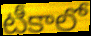
టీకాలో